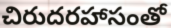
చిరుదరహాసంతో